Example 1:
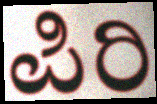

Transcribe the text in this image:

ಪಿರಿ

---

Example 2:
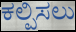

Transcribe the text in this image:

ಕಲ್ಪಿಸಲು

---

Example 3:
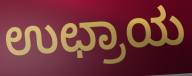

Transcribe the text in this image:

ಉಛ್ರಾಯ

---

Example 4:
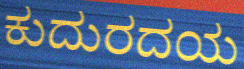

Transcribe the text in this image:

ಕುದುರದಯ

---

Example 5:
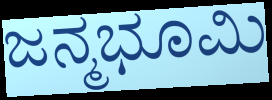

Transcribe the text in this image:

ಜನ್ಮಭೂಮಿ